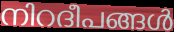
നിറദീപങ്ങൾ